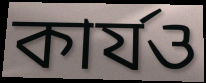
কার্যও